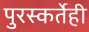
पुरस्कर्तेही